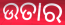
ଉତାର